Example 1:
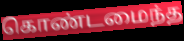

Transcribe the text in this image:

கொண்டமைந்த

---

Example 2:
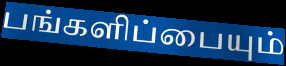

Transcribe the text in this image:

பங்களிப்பையும்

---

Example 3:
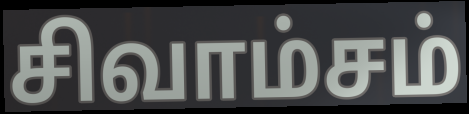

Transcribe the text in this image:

சிவாம்சம்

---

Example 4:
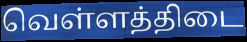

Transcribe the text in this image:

வெள்ளத்திடை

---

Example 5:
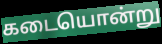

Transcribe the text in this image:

கடையொன்று